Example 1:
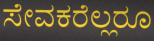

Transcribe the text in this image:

ಸೇವಕರೆಲ್ಲರೂ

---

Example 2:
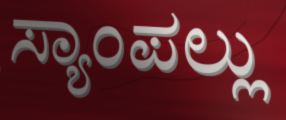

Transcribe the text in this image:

ಸ್ಯಾಂಪಲ್ಲು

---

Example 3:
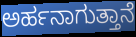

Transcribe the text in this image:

ಅರ್ಹನಾಗುತ್ತಾನೆ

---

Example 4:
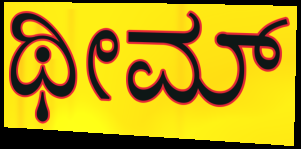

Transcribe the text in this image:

ಥೀಮ್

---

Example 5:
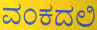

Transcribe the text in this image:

ವಂಕದಲಿ